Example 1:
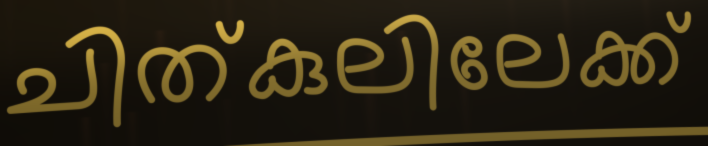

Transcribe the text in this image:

ചിത്കുലിലേക്ക്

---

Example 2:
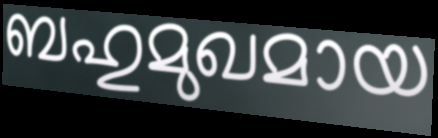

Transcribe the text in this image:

ബഹുമുഖമായ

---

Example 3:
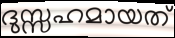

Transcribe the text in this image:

ദുസ്സഹമായത്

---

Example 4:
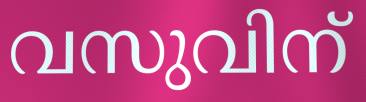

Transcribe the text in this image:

വസുവിന്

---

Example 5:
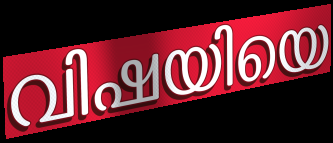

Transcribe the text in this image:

വിഷയിയെ